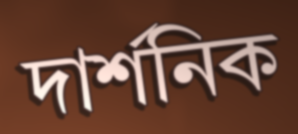
দাৰ্শনিক